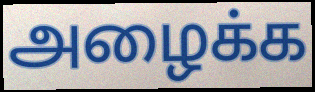
அழைக்க